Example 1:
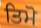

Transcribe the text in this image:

ਤਿਮੋ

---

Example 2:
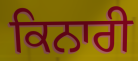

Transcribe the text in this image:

ਕਿਨਾਰੀ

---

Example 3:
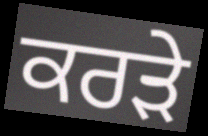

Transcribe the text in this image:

ਕਰੜੇ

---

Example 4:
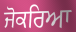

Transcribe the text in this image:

ਜੋਕਰਿਆ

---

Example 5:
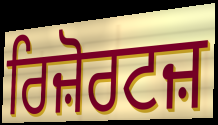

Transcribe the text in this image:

ਰਿਜ਼ੋਰਟਜ਼